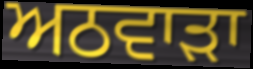
ਅਠਵਾੜਾ